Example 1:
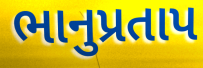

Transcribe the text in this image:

ભાનુપ્રતાપ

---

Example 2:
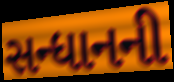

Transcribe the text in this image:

સન્ધાનની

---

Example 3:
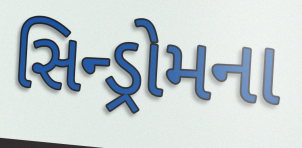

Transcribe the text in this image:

સિન્ડ્રોમના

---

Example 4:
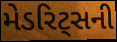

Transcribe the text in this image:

મેડરિટ્સની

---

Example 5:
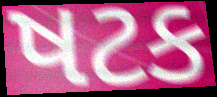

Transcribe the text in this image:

ષટક